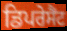
ਡਿਪਰੇਸੈਂਟ